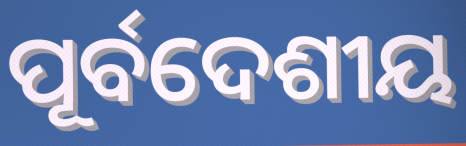
ପୂର୍ବଦେଶୀୟ